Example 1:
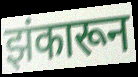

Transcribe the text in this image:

झंकारून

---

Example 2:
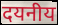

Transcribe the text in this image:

दयनीय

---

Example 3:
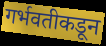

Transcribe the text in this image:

गर्भवतीकडून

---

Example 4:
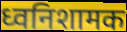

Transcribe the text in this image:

ध्वनिशामक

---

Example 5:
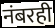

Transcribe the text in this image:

नंबरही